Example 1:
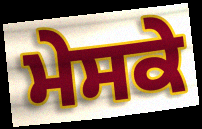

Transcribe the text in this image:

ਮੇਸਕੇ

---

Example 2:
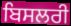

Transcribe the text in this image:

ਬਿਸਲਰੀ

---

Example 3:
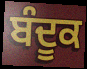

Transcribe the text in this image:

ਬੰਦੂਕ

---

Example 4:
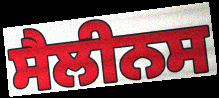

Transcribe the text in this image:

ਸੈਲੀਨਸ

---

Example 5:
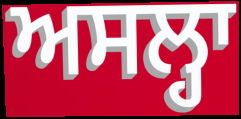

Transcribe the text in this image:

ਅਸਲ੍ਹਾ